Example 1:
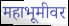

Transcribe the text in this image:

महाभूमीवर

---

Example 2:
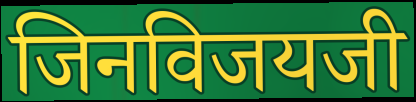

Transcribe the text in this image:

जिनविजयजी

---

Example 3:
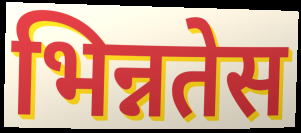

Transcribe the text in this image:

भिन्नतेस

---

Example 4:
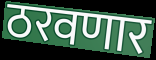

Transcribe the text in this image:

ठरवणार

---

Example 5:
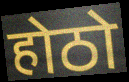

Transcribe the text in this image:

होठो